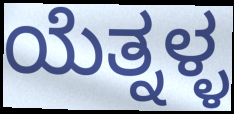
ಯೆತ್ನಳ್ಳ